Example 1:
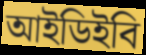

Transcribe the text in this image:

আইডিইবি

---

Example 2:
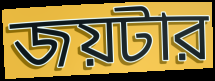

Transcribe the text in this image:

জয়টার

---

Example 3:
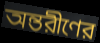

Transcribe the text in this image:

অন্তরীণের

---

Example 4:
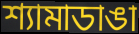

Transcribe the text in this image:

শ্যামাডাঙা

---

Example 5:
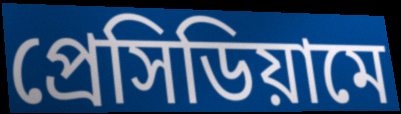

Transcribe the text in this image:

প্রেসিডিয়ামে